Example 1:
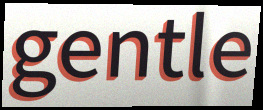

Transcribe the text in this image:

gentle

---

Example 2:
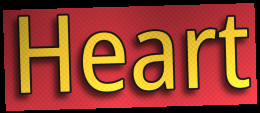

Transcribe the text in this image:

Heart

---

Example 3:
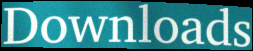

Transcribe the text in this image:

Downloads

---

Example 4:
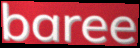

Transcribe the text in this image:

baree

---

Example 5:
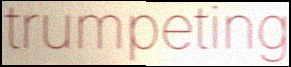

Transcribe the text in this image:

trumpeting